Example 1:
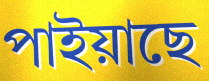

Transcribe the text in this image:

পাইয়াছে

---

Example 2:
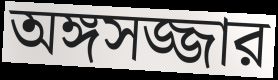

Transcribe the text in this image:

অঙ্গসজ্জার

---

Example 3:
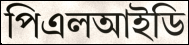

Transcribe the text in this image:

পিএলআইডি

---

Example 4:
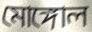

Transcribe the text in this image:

মোঙ্গোল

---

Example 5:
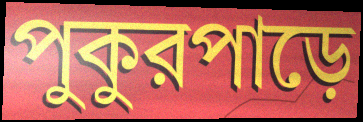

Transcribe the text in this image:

পুকুরপাড়ে